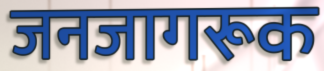
जनजागरूक